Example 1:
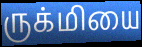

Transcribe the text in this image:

ருக்மியை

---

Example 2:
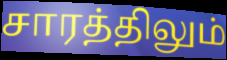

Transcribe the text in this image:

சாரத்திலும்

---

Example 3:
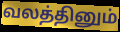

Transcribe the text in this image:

வலத்தினும்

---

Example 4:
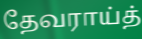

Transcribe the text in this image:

தேவராய்த்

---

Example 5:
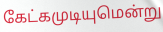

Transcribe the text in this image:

கேட்கமுடியுமென்று